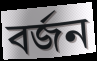
বর্জন